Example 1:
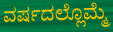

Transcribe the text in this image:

ವರ್ಷದಲ್ಲೊಮ್ಮೆ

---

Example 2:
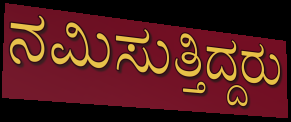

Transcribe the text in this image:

ನಮಿಸುತ್ತಿದ್ದರು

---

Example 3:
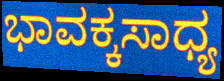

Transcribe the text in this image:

ಭಾವಕ್ಕಸಾಧ್ಯ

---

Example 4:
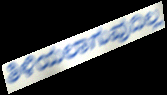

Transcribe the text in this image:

ತಿಳಿಯಲಾಗುವುದಿಲ್ಲ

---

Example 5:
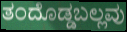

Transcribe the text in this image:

ತಂದೊಡ್ಡಬಲ್ಲವು